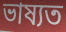
ভাষ্যত